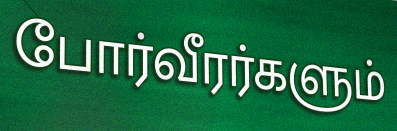
போர்வீரர்களும்